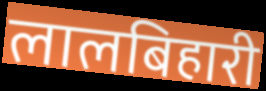
लालबिहारी